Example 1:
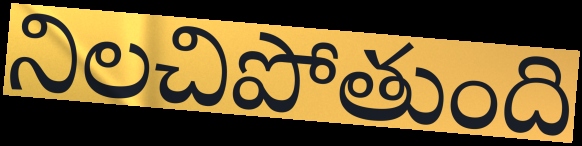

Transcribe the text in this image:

నిలచిపోతుంది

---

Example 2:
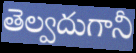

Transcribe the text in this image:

తెల్వదుగానీ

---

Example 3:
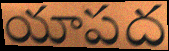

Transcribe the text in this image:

యాపద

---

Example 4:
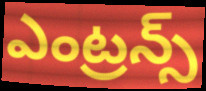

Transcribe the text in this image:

ఎంట్రన్స్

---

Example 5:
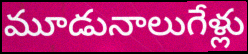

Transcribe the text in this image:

మూడునాలుగేళ్లు